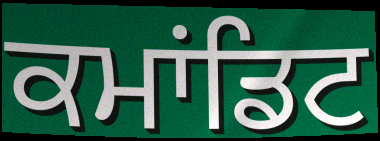
ਕਮਾਂਡਿਟ